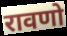
रावणो